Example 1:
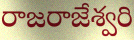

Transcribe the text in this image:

రాజరాజేశ్వరి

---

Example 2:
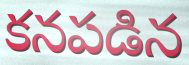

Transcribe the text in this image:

కనపడిన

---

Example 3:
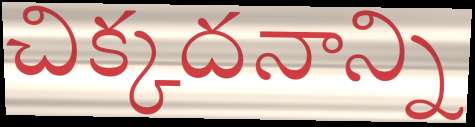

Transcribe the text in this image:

చిక్కదనాన్ని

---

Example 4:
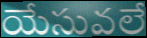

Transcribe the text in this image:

యేసువలే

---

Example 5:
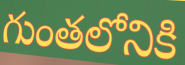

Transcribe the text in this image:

గుంతలోనికి